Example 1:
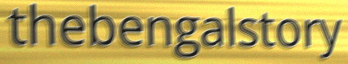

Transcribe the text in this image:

thebengalstory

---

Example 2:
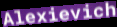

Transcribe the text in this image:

Alexievich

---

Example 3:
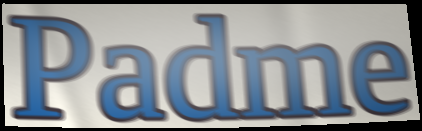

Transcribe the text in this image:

Padme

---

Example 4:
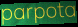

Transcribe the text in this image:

parpota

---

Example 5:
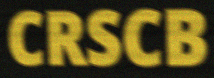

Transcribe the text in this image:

CRSCB